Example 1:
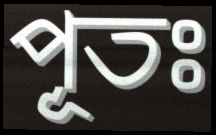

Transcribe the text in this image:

পূতঃ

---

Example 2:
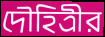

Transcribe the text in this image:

দৌহিত্রীর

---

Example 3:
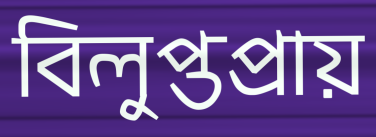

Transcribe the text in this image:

বিলুপ্তপ্রায়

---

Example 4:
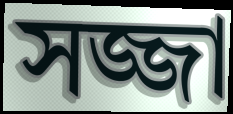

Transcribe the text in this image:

সজ্জা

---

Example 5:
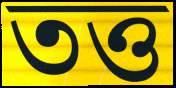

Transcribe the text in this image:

তত্ত